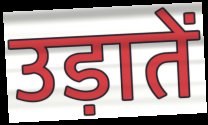
उड़ातें